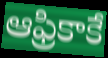
ఆఫ్రికాకే